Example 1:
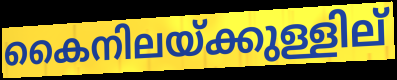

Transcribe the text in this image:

കൈനിലയ്ക്കുള്ളില്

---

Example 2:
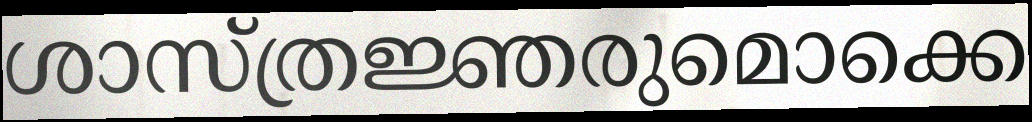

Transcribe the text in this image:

ശാസ്ത്രജ്ഞരുമൊക്കെ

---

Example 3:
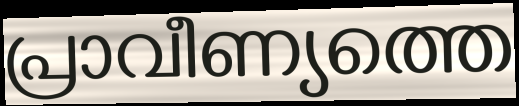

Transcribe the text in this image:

പ്രാവീണ്യത്തെ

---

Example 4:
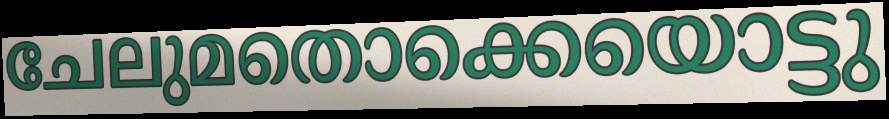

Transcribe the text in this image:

ചേലുമതൊക്കെയൊട്ടു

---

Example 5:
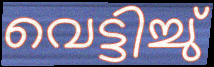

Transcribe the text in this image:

വെട്ടിച്ചു്